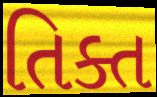
તિક્ત